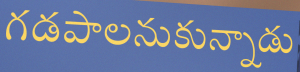
గడపాలనుకున్నాడు